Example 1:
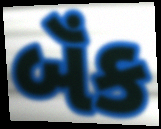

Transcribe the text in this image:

બૅંક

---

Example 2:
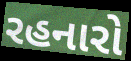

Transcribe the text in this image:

રહનારો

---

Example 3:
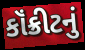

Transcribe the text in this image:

કૉંક્રીટનું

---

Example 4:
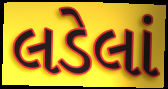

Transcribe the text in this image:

લડેલાં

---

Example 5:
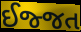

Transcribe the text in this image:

ઈજ્જત